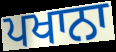
ਪਖਾਨਾ